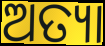
ଅତ୍ୟା